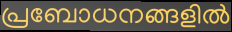
പ്രബോധനങ്ങളിൽ